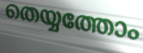
തെയ്യത്തോം